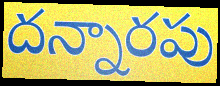
దన్నారపు